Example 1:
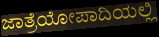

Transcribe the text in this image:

ಜಾತ್ರೆಯೋಪಾದಿಯಲ್ಲಿ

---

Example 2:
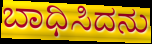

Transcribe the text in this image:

ಬಾಧಿಸಿದನು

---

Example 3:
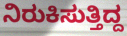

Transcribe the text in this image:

ನಿರುಕಿಸುತ್ತಿದ್ದ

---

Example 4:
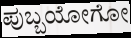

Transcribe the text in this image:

ಪುಬ್ಬಯೋಗೋ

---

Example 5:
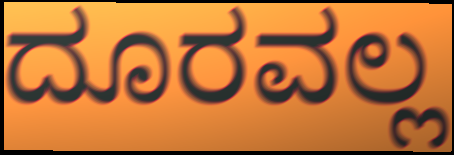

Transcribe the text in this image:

ದೂರವಲ್ಲ